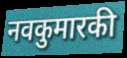
नवकुमारकी